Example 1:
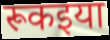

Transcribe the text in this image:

रूकइया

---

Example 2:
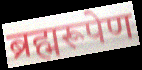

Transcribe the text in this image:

ब्रह्मरूपेण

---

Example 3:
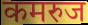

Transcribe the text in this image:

कमरुज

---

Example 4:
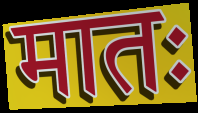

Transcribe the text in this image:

मातः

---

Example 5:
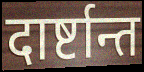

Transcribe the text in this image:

दार्ष्टान्त